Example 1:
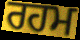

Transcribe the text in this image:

ਰਹਮ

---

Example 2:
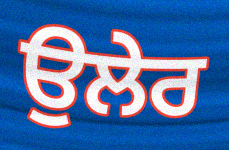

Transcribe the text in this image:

ਉਲੇਰ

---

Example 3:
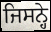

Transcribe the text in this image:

ਜਿਸਨ੍ਹੇ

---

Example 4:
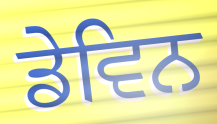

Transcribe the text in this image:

ਡੇਵਿਨ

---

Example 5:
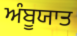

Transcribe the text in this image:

ਅੰਬੂਯਾਤ